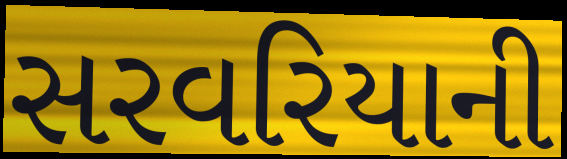
સરવરિયાની